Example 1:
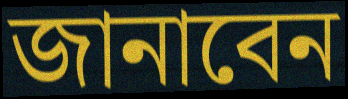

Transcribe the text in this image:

জানাবেন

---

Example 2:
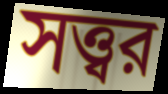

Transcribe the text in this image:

সত্ত্বর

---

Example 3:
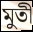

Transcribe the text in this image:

মুতী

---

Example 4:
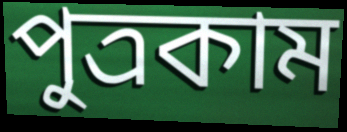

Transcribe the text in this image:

পুত্রকাম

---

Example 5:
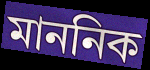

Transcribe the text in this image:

মাননিক